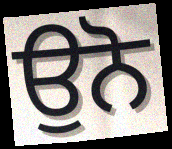
ਉਨੋ